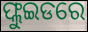
ଫ୍ଲୁଇଡରେ